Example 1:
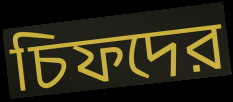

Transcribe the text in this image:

চিফদের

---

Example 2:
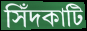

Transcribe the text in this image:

সিঁদকাটি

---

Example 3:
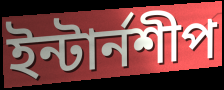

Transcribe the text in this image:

ইন্টার্নশীপ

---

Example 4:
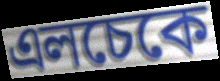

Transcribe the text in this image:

এলচেকে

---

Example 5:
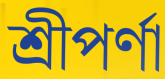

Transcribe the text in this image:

শ্রীপর্ণা